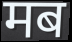
मब